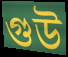
গুউ